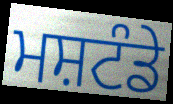
ਮਸ਼ਟੰਡੇ